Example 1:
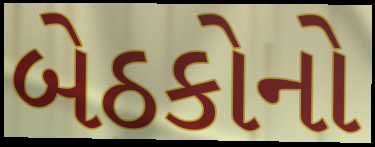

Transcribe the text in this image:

બેઠકોનો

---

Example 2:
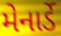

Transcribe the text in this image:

મેનાર્ડે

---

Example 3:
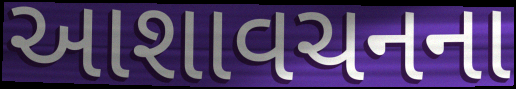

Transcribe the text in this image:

આશાવચનના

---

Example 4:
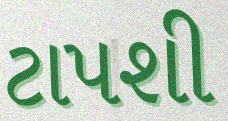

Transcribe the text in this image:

ટાપશી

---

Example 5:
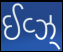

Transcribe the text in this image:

ઈવ્ઝ્